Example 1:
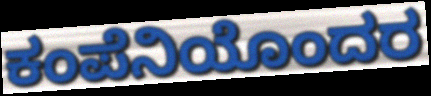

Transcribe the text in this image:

ಕಂಪೆನಿಯೊಂದರ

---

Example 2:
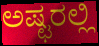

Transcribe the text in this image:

ಅಷ್ಟರಲ್ಲಿ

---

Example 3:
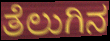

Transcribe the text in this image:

ತೆಲುಗಿನ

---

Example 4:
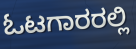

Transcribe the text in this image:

ಓಟಗಾರರಲ್ಲಿ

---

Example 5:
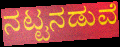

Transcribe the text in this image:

ನಟ್ಟನಡುವೆ